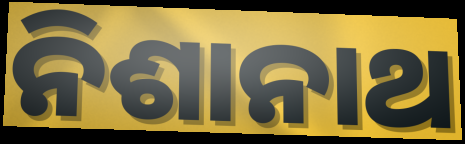
ନିଶାନାଥ